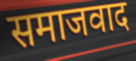
समाजवाद